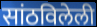
सांठविलेली